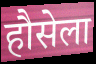
हौसेला